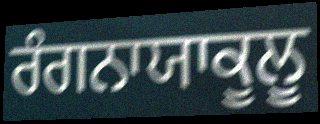
ਰੰਗਨਾਯਾਕੂਲੂ